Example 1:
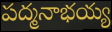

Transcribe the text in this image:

పద్మనాభయ్య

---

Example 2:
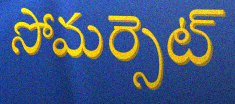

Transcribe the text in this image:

సోమర్సెట్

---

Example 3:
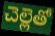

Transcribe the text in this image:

చెల్లెతో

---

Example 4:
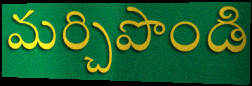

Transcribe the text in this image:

మర్చిపొండి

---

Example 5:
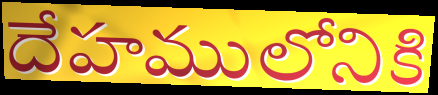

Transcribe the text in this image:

దేహములోనికి